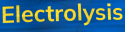
Electrolysis